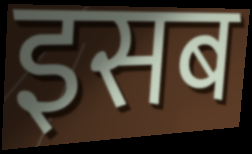
इसब